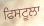
ਫਿਸਟੂਲਾ